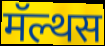
मॅल्थस